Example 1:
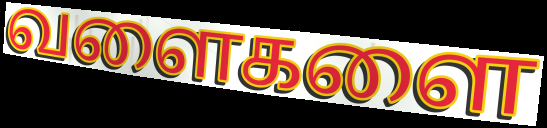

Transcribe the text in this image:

வளைகளை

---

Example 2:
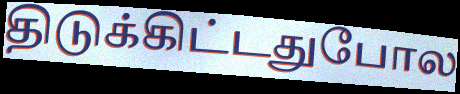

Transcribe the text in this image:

திடுக்கிட்டதுபோல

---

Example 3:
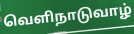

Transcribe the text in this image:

வெளிநாடுவாழ்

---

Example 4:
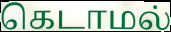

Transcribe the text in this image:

கெடாமல்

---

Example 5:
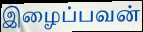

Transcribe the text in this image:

இழைப்பவன்